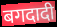
बगदादी